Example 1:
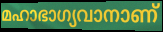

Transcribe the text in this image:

മഹാഭാഗ്യവാനാണ്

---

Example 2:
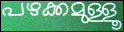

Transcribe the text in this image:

പഴക്കമുള്ളൂ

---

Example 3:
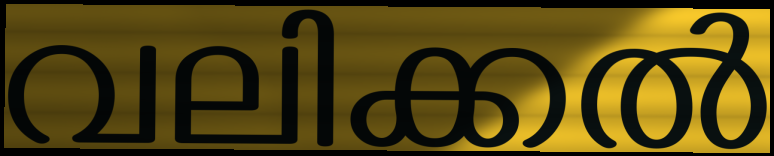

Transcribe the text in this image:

വലിക്കൽ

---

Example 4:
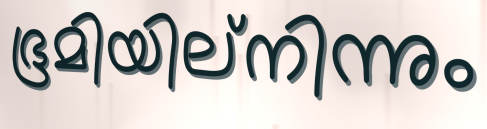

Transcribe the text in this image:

ഭൂമിയില്നിന്നും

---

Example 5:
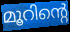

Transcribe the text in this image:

മൂറിന്റെ